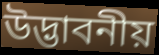
উদ্ভাবনীয়